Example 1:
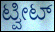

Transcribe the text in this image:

ಟ್ವೀಟ್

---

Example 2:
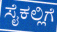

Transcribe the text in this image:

ಸೈಕಲ್ಲಿಗೆ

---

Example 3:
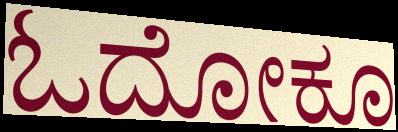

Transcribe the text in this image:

ಓದೋಕೂ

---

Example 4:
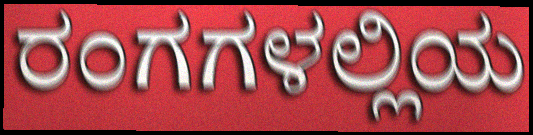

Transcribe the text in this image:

ರಂಗಗಳಲ್ಲಿಯ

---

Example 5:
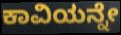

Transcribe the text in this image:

ಕಾವಿಯನ್ನೇ